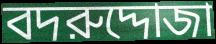
বদরুদ্দোজা